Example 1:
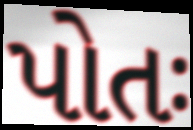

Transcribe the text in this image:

પોતઃ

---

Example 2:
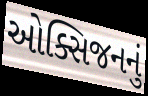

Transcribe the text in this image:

ઓક્સિજનનું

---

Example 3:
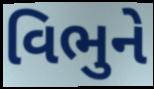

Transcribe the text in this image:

વિભુને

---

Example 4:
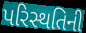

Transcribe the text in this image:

પરિસ્થતિની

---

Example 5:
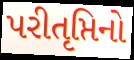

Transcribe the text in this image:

પરીતૃપ્તિનો